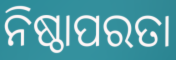
ନିଷ୍ଠାପରତା